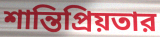
শান্তিপ্রিয়তার